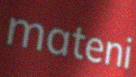
mateni